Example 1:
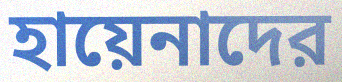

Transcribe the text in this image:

হায়েনাদের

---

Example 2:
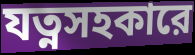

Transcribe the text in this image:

যত্নসহকারে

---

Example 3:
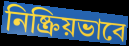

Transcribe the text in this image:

নিষ্ক্রিয়ভাবে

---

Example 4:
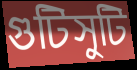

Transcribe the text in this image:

গুটিসুটি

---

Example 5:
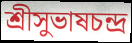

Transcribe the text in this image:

শ্রীসুভাষচন্দ্র